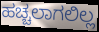
ಹಚ್ಚಲಾಗಲಿಲ್ಲ